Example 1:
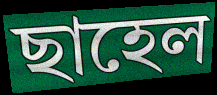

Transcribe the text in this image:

ছাহেল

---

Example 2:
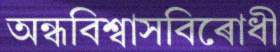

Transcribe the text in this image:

অন্ধবিশ্বাসবিৰোধী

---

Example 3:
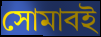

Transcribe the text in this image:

সোমাবই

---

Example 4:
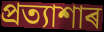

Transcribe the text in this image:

প্ৰত্যাশাৰ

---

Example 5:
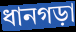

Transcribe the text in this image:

ধানগড়া